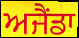
ਅਜੈਂਡਾ